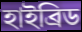
হাইব্রিড